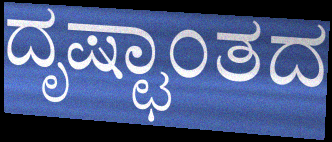
ದೃಷ್ಟಾಂತದ